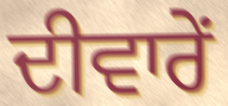
ਦੀਵਾਰੇਂ